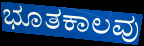
ಭೂತಕಾಲವು